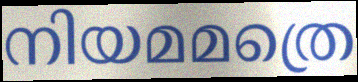
നിയമമത്രെ